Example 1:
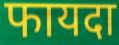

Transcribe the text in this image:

फायदा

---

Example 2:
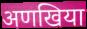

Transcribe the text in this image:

अणखिया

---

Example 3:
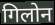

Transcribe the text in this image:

गिलोन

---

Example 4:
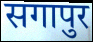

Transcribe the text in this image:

सगापुर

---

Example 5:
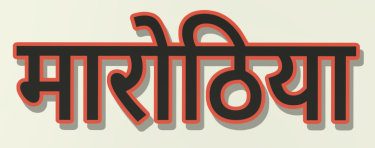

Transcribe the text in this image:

मारोठिया